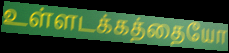
உள்ளடக்கத்தையோ